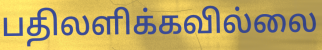
பதிலளிக்கவில்லை